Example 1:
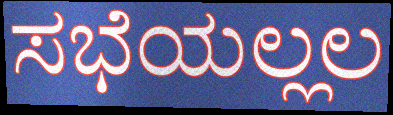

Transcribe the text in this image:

ಸಭೆಯಲ್ಲಲ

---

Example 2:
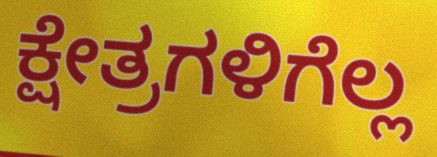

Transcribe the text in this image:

ಕ್ಷೇತ್ರಗಳಿಗೆಲ್ಲ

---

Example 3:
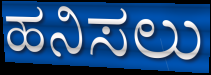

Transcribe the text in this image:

ಹನಿಸಲು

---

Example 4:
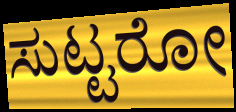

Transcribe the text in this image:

ಸುಟ್ಟರೋ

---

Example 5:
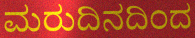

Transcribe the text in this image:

ಮರುದಿನದಿಂದ